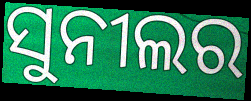
ସୁନୀଲର